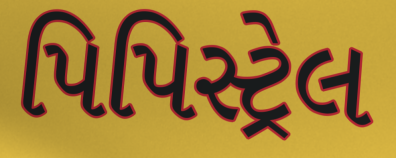
પિપિસ્ટ્રેલ